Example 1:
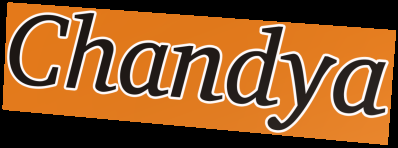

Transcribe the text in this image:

Chandya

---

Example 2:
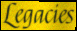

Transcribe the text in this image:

Legacies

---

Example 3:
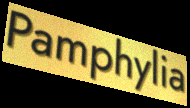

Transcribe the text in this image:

Pamphylia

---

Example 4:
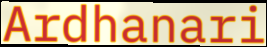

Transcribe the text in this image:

Ardhanari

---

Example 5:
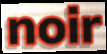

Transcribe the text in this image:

noir